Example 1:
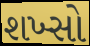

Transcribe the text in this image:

શખ્સો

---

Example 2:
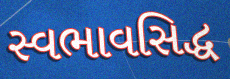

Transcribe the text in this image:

સ્વભાવસિદ્ધ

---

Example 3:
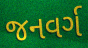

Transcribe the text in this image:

જનવર્ગ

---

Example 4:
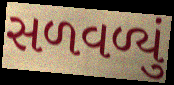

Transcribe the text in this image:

સળવળ્યું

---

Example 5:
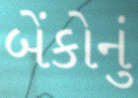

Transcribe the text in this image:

બેંકોનું